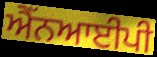
ਐੱਨਆਈਪੀ